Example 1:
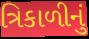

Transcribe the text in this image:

ત્રિકાળીનું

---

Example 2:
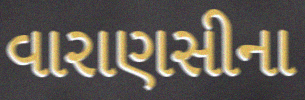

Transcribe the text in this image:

વારાણસીના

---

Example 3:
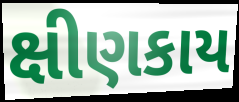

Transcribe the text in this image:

ક્ષીણકાય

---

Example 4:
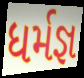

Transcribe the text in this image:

ધર્મજ્ઞ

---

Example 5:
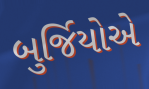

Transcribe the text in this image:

બુર્જિયોએ